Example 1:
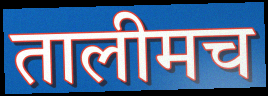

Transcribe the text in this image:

तालीमच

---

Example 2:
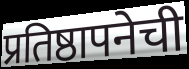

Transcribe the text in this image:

प्रतिष्ठापनेची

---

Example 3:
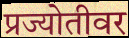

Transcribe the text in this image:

प्रज्योतीवर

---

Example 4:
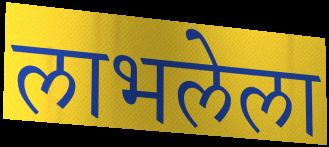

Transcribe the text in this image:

लाभलेला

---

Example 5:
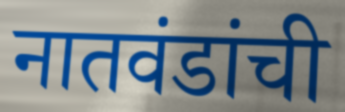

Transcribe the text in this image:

नातवंडांची